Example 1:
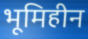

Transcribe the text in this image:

भूमिहीन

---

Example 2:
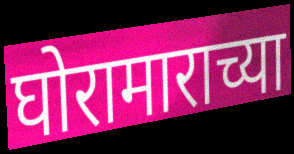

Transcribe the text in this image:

घोरामाराच्या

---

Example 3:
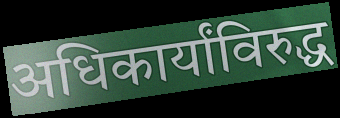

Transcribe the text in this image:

अधिकार्यांविरुद्ध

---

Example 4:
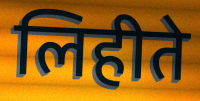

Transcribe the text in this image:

लिहीते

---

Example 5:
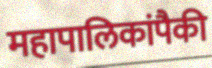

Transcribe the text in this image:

महापालिकांपैकी